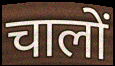
चालों